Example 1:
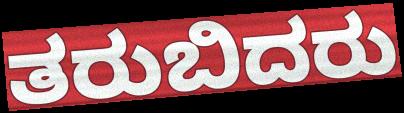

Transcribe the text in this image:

ತರುಬಿದರು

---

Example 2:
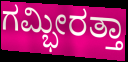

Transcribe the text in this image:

ಗಮ್ಭೀರತ್ತಾ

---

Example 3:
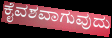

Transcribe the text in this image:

ಕೈವಶವಾಗುವುದು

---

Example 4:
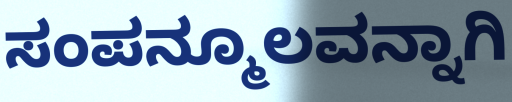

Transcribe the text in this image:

ಸಂಪನ್ಮೂಲವನ್ನಾಗಿ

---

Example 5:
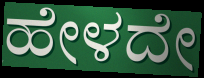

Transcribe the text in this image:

ಹೇಳದೇ